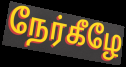
நேர்கீழே